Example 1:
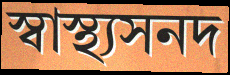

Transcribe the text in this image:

স্বাস্থ্যসনদ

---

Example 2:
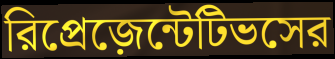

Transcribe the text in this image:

রিপ্রেজ়েন্টেটিভসের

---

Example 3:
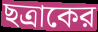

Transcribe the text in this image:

ছত্রাকের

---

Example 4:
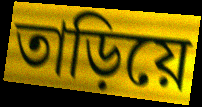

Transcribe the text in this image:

তাড়িয়ে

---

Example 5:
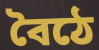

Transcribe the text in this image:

বৈঠে